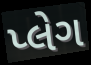
પ્લેગ